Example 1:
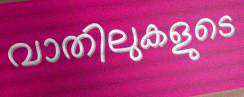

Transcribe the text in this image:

വാതിലുകളുടെ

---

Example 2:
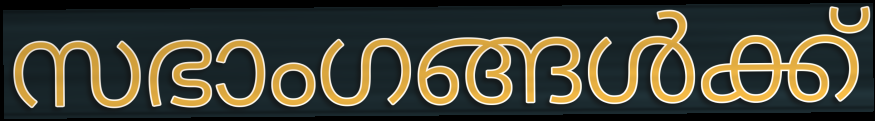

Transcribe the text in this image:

സഭാംഗങ്ങൾക്ക്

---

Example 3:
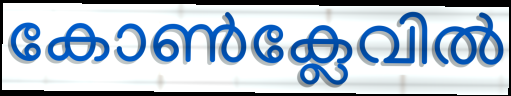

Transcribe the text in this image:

കോൺക്ലേവിൽ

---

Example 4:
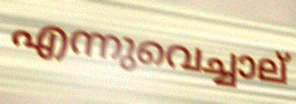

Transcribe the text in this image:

എന്നുവെച്ചാല്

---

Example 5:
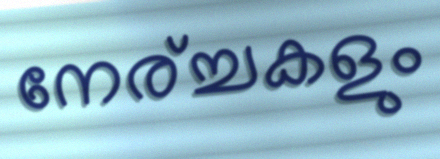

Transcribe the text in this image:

നേര്ച്ചകളും